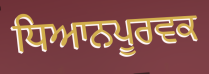
ਧਿਆਨਪੂਰਵਕ